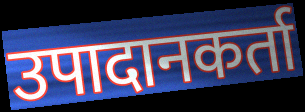
उपादानकर्ता